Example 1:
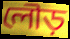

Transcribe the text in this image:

লৌড়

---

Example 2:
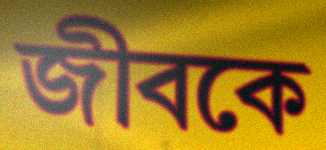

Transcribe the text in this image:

জীবকে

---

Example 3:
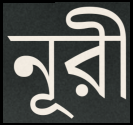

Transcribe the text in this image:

নূরী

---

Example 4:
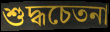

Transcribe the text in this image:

শুদ্ধচেতনা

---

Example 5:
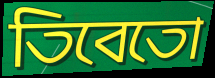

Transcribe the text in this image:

তিবেতো